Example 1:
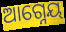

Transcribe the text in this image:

ଆଗ୍ନେୟ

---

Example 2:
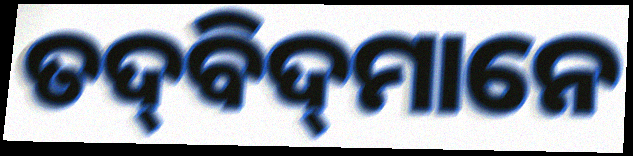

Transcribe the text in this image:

ତଦ୍‌ବିଦ୍‌ମାନେ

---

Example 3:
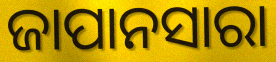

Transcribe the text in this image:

ଜାପାନସାରା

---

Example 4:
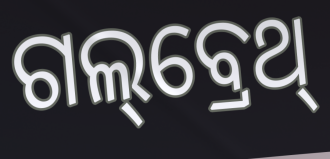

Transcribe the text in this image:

ଗଲ୍‌ବ୍ରେଥ୍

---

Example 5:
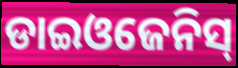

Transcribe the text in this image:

ଡାଇଓଜେନିସ୍